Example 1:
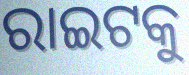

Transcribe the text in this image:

ରାଇଟକୁ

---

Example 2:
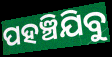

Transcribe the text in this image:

ପହଞ୍ଚିଯିବୁ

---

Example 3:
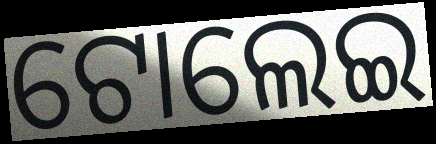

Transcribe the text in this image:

ଟୋଲେଇ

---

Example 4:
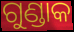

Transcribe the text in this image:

ଗୁଣ୍ଡାକ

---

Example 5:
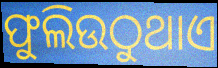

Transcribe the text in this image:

ଫୁଲିଉଠୁଥାଏ